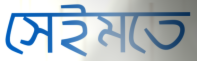
সেইমতে